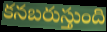
కనబరుస్తుంది